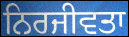
ਨਿਰਜੀਵਤਾ